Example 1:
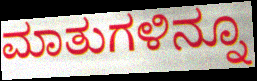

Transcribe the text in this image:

ಮಾತುಗಳಿನ್ನೂ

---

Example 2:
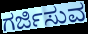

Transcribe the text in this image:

ಗರ್ಜಿಸುವ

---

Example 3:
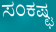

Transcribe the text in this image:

ಸಂಕಷ್ಟ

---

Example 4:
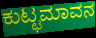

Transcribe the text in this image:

ಕುಟ್ಟಮಾವನ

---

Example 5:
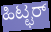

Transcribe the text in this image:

ಹಿಟ್ಟರ್